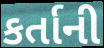
કર્તાની